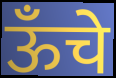
ऊँचे